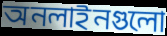
অনলাইনগুলো